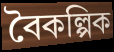
বৈকল্পিক